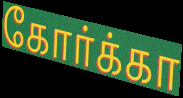
கோர்க்கா